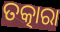
ତତ୍କାରା